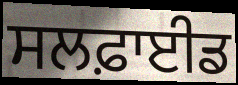
ਸਲਫ਼ਾਈਡ